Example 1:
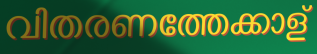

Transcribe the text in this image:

വിതരണത്തേക്കാള്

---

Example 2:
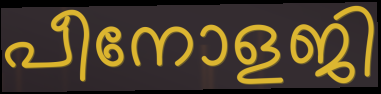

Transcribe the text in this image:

പീനോളജി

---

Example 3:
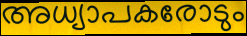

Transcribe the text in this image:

അധ്യാപകരോടും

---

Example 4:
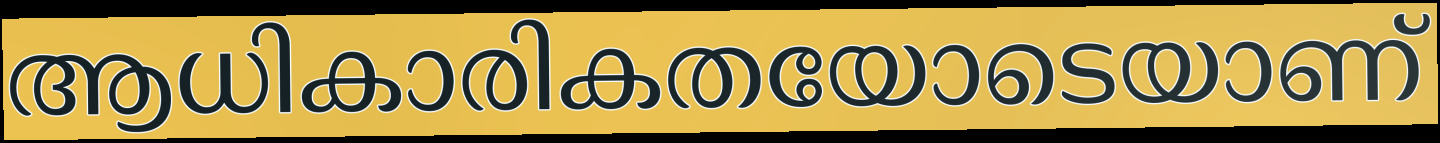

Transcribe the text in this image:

ആധികാരികതയോടെയാണ്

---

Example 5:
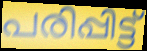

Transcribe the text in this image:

പരിപ്പിട്ട്